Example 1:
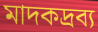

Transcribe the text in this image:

মাদকদ্রব্য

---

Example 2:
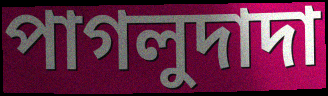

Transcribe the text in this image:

পাগলুদাদা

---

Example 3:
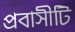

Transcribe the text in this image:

প্রবাসীটি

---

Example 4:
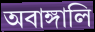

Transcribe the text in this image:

অবাঙ্গালি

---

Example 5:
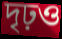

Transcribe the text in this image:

দৃঢ়ও